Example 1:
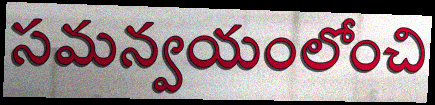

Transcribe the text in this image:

సమన్వయంలోంచి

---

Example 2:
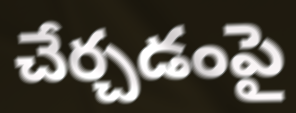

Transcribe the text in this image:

చేర్చడంపై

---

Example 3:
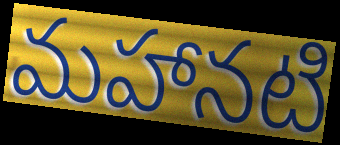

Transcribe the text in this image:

మహానటి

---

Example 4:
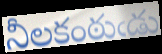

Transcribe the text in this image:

నీలకంఠుఁడు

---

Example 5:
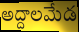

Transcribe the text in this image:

అద్దాలమేడ